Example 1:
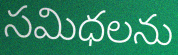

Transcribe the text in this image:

సమిధలను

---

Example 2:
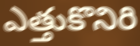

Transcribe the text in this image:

ఎత్తుకొనిరి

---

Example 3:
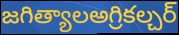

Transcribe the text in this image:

జగిత్యాలఅగ్రికల్చర్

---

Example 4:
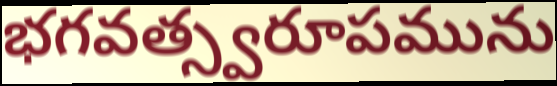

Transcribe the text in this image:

భగవత్స్వరూపమును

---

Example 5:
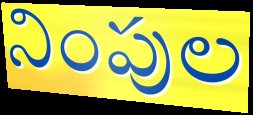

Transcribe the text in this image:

నింపుల